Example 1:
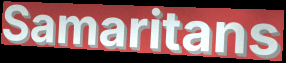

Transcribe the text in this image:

Samaritans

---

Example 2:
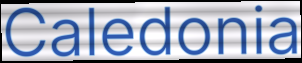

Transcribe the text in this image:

Caledonia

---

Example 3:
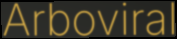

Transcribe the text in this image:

Arboviral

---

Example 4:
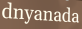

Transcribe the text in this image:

dnyanada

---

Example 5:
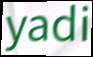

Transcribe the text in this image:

yadi